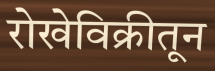
रोखेविक्रीतून